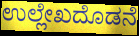
ಉಲ್ಲೇಖದೊಡನೆ